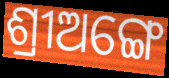
ଶ୍ରୀଅଙ୍ଗେ